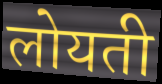
लोयती